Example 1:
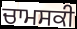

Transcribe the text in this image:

ਚਾਮਸਕੀ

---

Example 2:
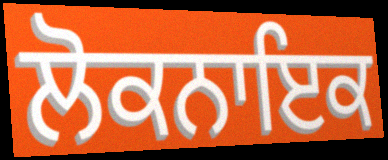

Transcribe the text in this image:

ਲੋਕਨਾਇਕ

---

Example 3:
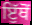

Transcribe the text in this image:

ਇੁੱਥੋਂ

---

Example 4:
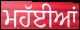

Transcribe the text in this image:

ਮਹੱਈਆਂ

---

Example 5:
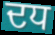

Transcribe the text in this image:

ਦਧ